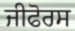
ਜੀਫੋਰਸ